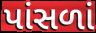
પાંસળાં